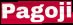
Pagoji